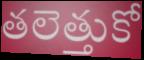
తలెత్తుకో